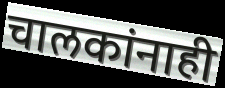
चालकांनाही